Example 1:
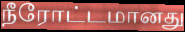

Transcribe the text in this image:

நீரோட்டமானது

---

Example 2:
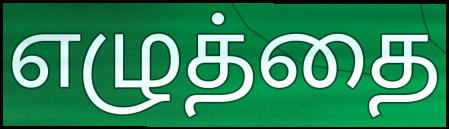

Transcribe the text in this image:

எழுத்தை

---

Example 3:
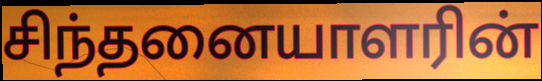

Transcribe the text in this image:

சிந்தனையாளரின்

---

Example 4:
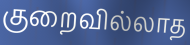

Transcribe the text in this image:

குறைவில்லாத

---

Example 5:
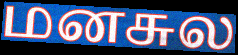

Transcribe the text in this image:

மனசுல